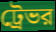
ট্রেভর